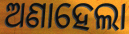
ଅଣାହେଲା